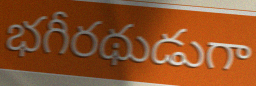
భగీరథుడుగా